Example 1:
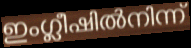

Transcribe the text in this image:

ഇംഗ്ലീഷിൽനിന്ന്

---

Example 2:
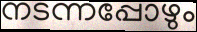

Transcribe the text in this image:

നടന്നപ്പോഴും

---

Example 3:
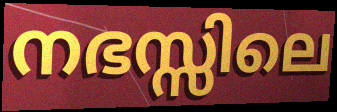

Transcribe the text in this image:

നഭസ്സിലെ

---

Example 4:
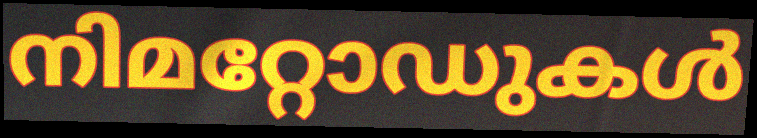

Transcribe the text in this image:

നിമറ്റോഡുകൾ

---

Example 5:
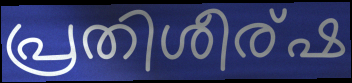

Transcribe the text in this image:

പ്രതിശീര്ഷ